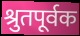
श्रुतपूर्वक